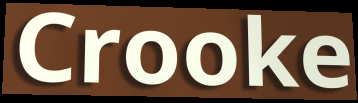
Crooke